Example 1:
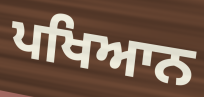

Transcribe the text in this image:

ਪਖਿਆਨ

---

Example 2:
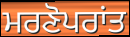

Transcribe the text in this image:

ਮਰਣੋਪਰਾਂਤ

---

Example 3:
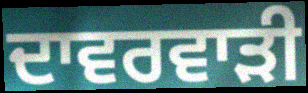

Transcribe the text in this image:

ਦਾਵਰਵਾੜੀ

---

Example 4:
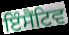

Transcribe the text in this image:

ਇੰਸੈਂਟਿਵ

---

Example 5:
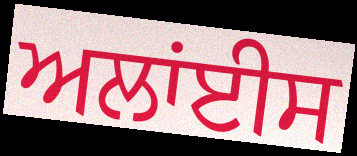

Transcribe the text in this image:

ਅਲਾਂਈਸ